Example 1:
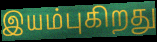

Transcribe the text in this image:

இயம்புகிறது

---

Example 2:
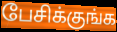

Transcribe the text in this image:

பேசிக்குங்க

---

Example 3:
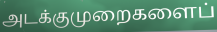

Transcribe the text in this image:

அடக்குமுறைகளைப்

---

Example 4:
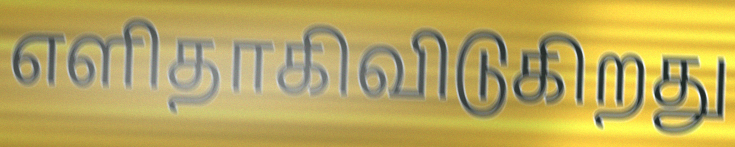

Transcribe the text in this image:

எளிதாகிவிடுகிறது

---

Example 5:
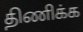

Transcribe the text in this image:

திணிக்க